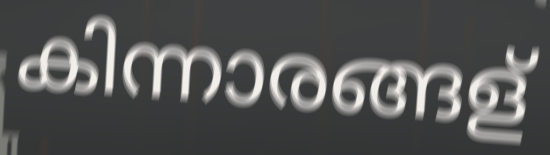
കിന്നാരങ്ങള്